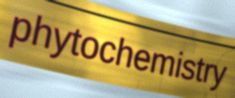
phytochemistry